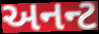
અનન્ટ